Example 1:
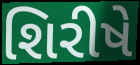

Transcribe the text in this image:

શિરીષે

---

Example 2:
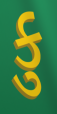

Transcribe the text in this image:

કુ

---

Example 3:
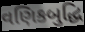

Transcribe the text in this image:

વણિકબુદ્ધિ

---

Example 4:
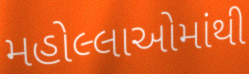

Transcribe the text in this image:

મહોલ્લાઓમાંથી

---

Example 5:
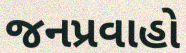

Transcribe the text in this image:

જનપ્રવાહો